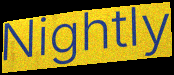
Nightly